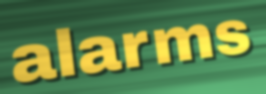
alarms